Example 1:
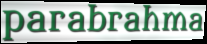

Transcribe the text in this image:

parabrahma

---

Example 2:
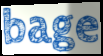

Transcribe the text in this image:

bage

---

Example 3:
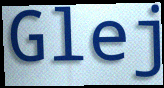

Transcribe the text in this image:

Glej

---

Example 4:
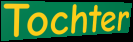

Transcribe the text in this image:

Tochter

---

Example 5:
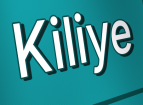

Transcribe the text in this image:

Kiliye